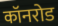
कॉनरोड